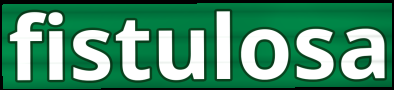
fistulosa